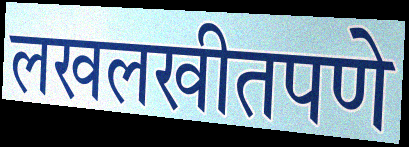
लखलखीतपणे